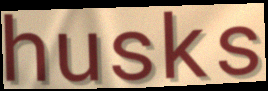
husks